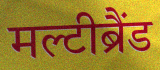
मल्टीब्रैंड